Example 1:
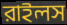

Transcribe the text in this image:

রাইলস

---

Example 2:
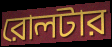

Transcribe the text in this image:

রোলটার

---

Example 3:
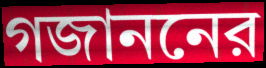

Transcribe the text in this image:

গজাননের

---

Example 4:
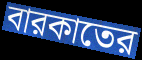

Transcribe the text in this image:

বারকাতের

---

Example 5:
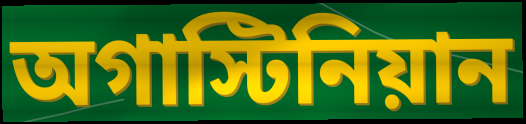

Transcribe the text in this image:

অগাস্টিনিয়ান